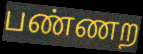
பண்ணற